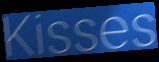
Kisses